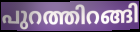
പുറത്തിറങ്ങി